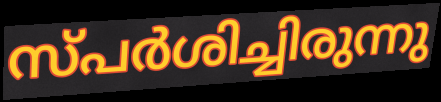
സ്പർശിച്ചിരുന്നു